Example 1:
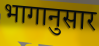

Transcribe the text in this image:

भागानुसार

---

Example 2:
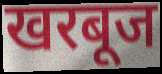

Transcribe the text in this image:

खरबूज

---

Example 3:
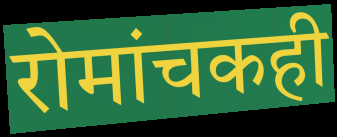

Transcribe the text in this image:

रोमांचकही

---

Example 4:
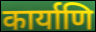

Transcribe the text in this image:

कार्याणि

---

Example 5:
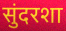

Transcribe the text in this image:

सुंदरशा